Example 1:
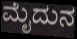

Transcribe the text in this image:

ಮೈದುನ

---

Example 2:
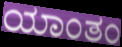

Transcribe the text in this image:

ಯಾಂತಂ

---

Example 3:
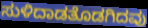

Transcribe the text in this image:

ಸುಳಿದಾಡತೊಡಗಿದವು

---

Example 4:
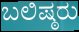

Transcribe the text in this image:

ಬಲಿಷ್ಠರು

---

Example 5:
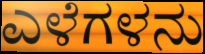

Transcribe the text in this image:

ಎಳೆಗಳನು